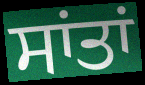
ਸਾਂਤਾਂ